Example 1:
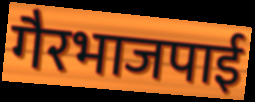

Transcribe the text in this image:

गैरभाजपाई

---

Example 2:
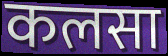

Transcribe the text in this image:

कलसा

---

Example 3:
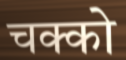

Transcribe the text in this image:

चक्को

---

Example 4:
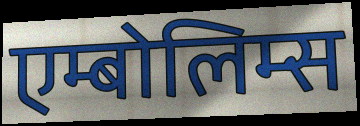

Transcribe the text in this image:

एम्बोलिम्स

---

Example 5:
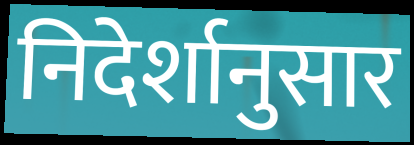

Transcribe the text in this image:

निदेर्शानुसार